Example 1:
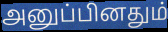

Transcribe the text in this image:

அனுப்பினதும்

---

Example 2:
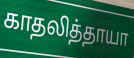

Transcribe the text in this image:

காதலித்தாயா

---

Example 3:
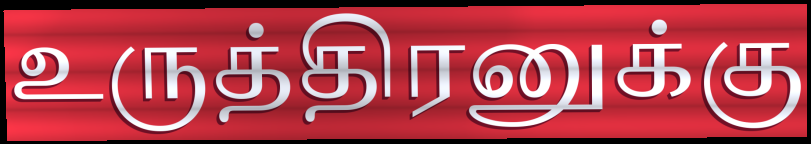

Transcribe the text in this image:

உருத்திரனுக்கு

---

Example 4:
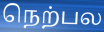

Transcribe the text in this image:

நெற்பல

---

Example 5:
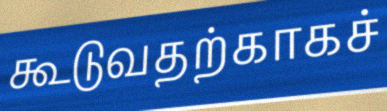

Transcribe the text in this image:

கூடுவதற்காகச்